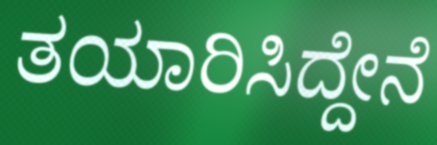
ತಯಾರಿಸಿದ್ದೇನೆ